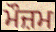
ਮੌਜ਼ਮ